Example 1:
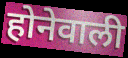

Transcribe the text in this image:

होनेवाली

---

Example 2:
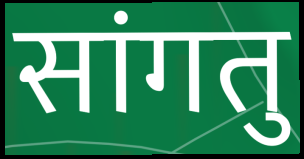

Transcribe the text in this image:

सांगतु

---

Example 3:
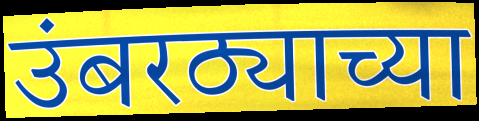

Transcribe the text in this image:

उंबरठ्याच्या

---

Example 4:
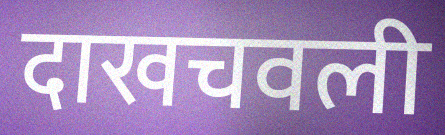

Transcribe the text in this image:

दाखचवली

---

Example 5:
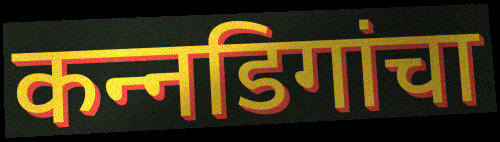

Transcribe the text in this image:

कन्नडिगांचा